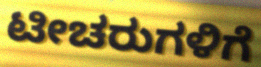
ಟೀಚರುಗಳಿಗೆ